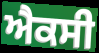
ਐਕਸੀ